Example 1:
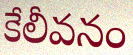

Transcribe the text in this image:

కేలీవనం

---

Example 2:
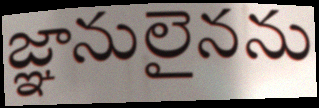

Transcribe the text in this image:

జ్ఞానులైనను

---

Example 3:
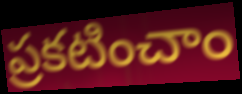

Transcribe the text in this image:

ప్రకటించాం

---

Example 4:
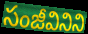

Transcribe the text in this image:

సంజీవినిని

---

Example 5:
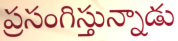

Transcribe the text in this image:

ప్రసంగిస్తున్నాడు